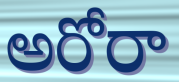
అరోరా